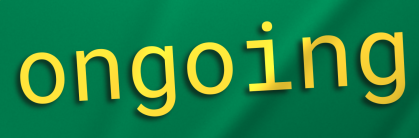
ongoing